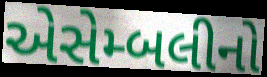
એસેમ્બલીનો